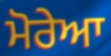
ਮੋਰੇਆ